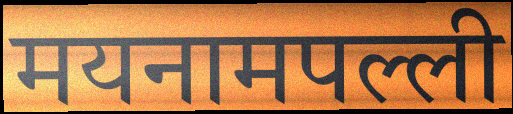
मयनामपल्ली